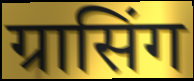
ग्रासिंग